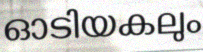
ഓടിയകലും